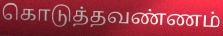
கொடுத்தவண்ணம்